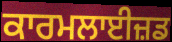
ਕਾਰਮਲਾਈਜ਼ਡ